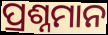
ପ୍ରଶ୍ନମାନ